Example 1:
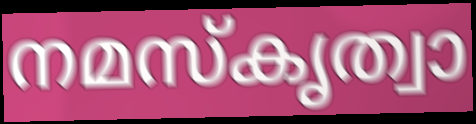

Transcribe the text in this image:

നമസ്കൃത്വാ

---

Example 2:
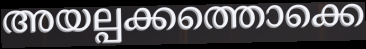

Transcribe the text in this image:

അയല്പക്കത്തൊക്കെ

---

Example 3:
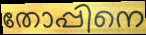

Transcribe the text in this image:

തോപ്പിനെ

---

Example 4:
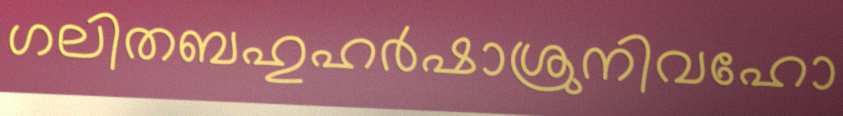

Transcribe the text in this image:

ഗലിതബഹുഹർഷാശ്രുനിവഹോ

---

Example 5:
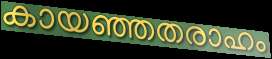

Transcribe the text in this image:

കായഞ്ഞതരാഹം